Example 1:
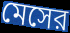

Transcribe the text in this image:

মেসের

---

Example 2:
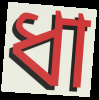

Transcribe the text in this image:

ধা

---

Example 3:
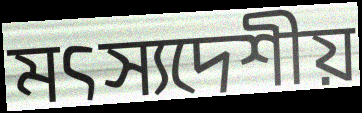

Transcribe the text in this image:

মৎস্যদেশীয়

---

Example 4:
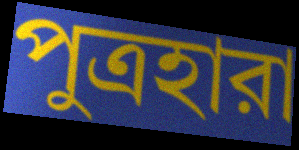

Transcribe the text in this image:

পুত্রহারা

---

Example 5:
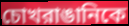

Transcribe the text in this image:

চোখরাঙানিকে